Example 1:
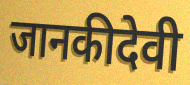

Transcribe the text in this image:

जानकीदेवी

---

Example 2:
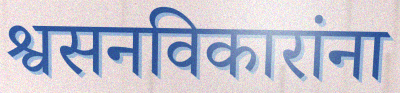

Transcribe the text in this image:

श्वसनविकारांना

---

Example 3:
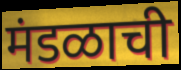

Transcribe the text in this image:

मंडळाची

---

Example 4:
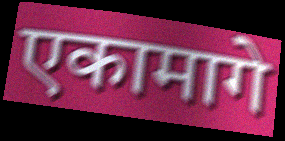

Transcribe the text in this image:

एकामागे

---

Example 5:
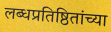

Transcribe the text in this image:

लब्धप्रतिष्ठितांच्या